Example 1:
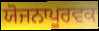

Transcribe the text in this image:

ਯੋਜਨਾਪੂਰਵਕ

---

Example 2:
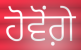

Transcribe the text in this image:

ਹੋਵੋਂਗ਼ੇ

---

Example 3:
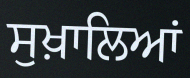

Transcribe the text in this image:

ਸੁਖ਼ਾਲਿਆਂ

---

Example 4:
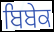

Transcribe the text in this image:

ਬਿਬੇਕ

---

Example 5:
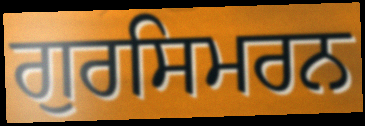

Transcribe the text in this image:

ਗੁਰਸਿਮਰਨ